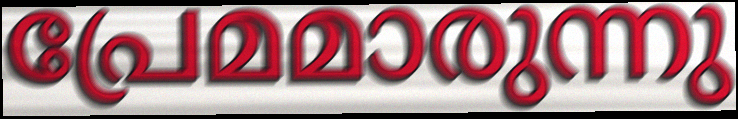
പ്രേമമാരുന്നു